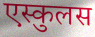
एस्कुलस